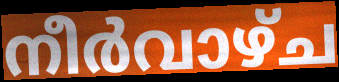
നീർവാഴ്ച